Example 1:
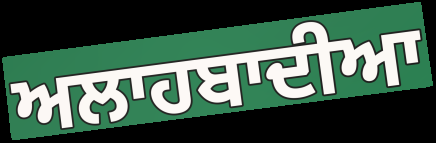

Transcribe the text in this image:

ਅਲਾਹਬਾਦੀਆ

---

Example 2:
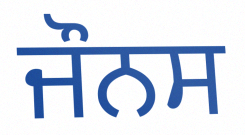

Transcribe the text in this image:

ਜੌਨਸ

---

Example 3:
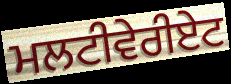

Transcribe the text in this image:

ਮਲਟੀਵੇਰੀਏਟ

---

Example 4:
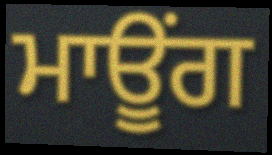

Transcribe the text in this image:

ਮਾਊਂਗ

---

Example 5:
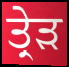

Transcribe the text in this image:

ਤ੍ਰੇੜ